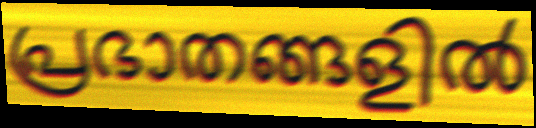
പ്രഭാതങ്ങളിൽ